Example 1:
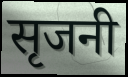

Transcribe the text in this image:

सृजनी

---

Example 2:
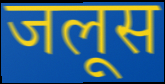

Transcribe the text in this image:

जलूस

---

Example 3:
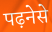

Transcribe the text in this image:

पढ़नेसे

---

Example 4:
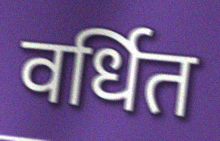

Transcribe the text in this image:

वर्धित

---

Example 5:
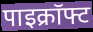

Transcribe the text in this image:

पाइक्रॉफ्ट